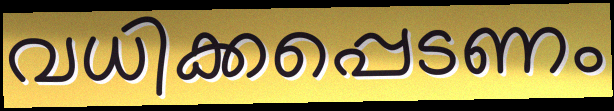
വധിക്കപ്പെടണം